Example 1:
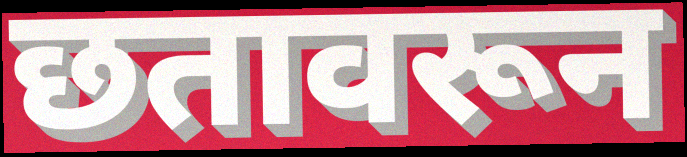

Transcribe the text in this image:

छतावरून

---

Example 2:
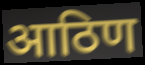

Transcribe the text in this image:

आठिण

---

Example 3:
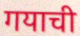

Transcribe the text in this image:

गयाची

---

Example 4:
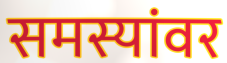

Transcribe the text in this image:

समस्यांवर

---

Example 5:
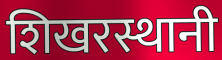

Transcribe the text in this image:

शिखरस्थानी